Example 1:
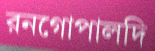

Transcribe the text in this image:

রনগোপালদি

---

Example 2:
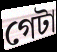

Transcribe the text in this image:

গেটা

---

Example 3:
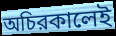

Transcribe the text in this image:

অচিরকালেই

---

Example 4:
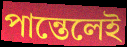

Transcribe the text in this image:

পান্তেলেই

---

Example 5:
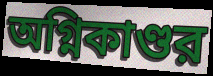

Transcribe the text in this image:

অগ্নিকাণ্ডর